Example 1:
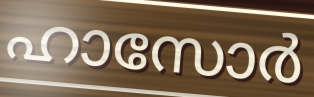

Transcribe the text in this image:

ഹാസോർ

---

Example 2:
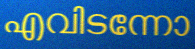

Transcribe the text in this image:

എവിടന്നോ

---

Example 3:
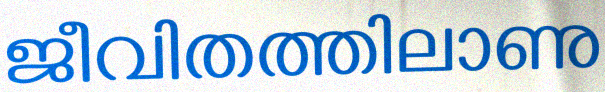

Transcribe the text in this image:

ജീവിതത്തിലാണു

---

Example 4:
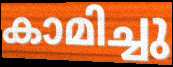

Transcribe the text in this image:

കാമിച്ചു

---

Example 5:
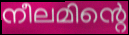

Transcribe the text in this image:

നീലമിന്റെ